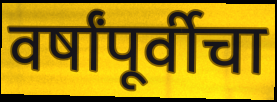
वर्षांपूर्वीचा